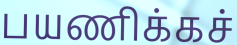
பயணிக்கச்